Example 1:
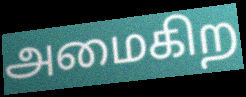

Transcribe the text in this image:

அமைகிற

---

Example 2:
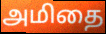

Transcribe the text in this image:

அமிதை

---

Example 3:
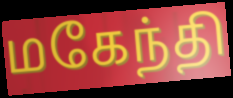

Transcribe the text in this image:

மகேந்தி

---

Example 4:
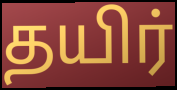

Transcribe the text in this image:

தயிர்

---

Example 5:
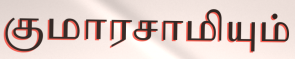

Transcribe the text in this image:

குமாரசாமியும்